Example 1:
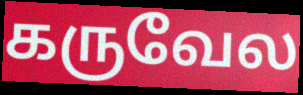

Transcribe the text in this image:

கருவேல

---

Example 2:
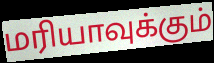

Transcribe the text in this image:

மரியாவுக்கும்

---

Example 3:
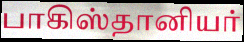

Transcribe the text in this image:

பாகிஸ்தானியர்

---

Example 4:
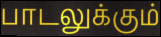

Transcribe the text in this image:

பாடலுக்கும்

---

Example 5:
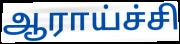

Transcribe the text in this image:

ஆராய்ச்சி